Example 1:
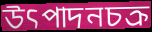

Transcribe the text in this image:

উৎপাদনচক্র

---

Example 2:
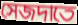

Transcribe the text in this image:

সেজদাতে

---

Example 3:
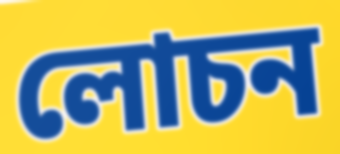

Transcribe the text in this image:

লোচন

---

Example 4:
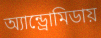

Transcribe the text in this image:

অ্যান্ড্রোমিডায়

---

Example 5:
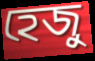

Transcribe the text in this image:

হেজু